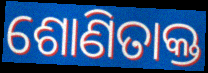
ଶୋଣିତାକ୍ତ